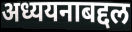
अध्ययनाबद्दल